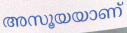
അസൂയയാണ്